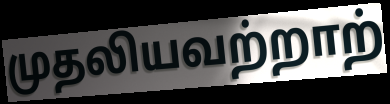
முதலியவற்றாற்